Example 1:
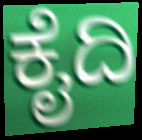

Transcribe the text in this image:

ಕೈದಿ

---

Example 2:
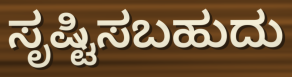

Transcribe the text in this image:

ಸೃಷ್ಟಿಸಬಹುದು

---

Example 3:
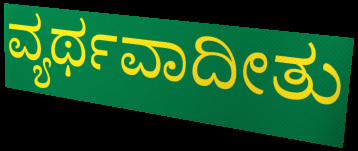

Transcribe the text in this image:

ವ್ಯರ್ಥವಾದೀತು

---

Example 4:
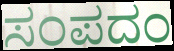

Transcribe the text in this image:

ಸಂಪದಂ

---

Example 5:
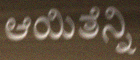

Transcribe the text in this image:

ಆಯಿತೆನ್ನಿ